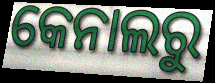
କେନାଲରୁ